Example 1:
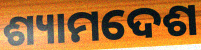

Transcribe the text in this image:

ଶ୍ୟାମଦେଶ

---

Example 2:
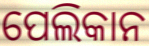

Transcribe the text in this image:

ପେଲିକାନ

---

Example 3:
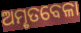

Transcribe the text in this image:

ଅମୃତବେଳା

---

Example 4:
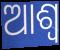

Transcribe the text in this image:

ଆଶ୍ୱ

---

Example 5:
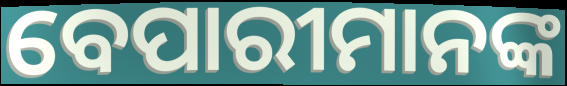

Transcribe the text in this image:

ବେପାରୀମାନଙ୍କ